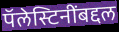
पॅलेस्टिनींबद्दल